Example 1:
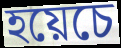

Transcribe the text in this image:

হয়েচে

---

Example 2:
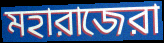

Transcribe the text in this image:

মহারাজেরা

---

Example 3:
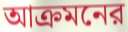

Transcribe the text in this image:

আক্রমনের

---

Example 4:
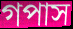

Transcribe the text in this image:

গপাস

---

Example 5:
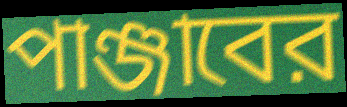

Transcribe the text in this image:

পাঞ্জাবের